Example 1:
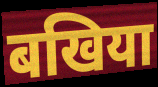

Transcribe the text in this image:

बखिया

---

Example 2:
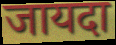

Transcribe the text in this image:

जायदा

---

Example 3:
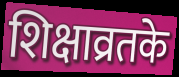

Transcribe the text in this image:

शिक्षाव्रतके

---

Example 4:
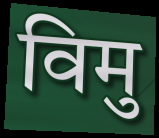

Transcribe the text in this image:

विमु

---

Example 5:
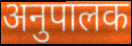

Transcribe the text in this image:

अनुपालक